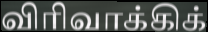
விரிவாக்கிக்